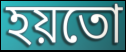
হয়তো